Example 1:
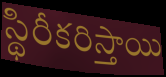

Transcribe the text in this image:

స్థిరీకరిస్తాయి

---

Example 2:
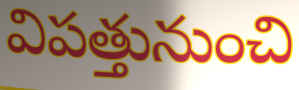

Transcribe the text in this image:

విపత్తునుంచి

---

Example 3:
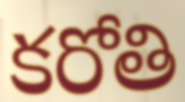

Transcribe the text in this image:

కరోతి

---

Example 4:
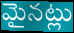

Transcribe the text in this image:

మైనట్లు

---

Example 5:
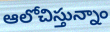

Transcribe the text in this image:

ఆలోచిస్తున్నాం